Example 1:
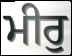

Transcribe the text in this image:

ਮੀਰੁ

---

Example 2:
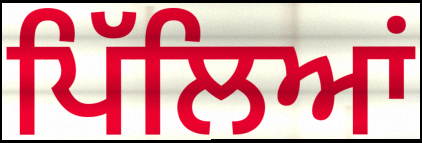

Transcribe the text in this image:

ਪਿੱਲਿਆਂ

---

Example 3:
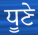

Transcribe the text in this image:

ਧੂਣੇ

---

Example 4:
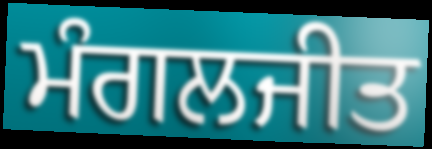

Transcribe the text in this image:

ਮੰਗਲਜੀਤ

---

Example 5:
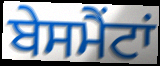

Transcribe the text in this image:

ਬੇਸਮੈਂਟਾਂ